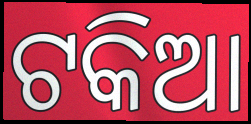
ଟକିଆ